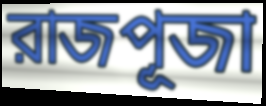
রাজপূজা